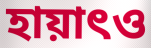
হায়াৎও